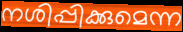
നശിപ്പിക്കുമെന്ന